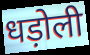
धड़ोली